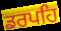
ਡਰਪਹਿ